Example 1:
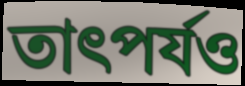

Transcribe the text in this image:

তাৎপর্যও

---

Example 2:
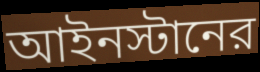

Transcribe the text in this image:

আইনস্টানের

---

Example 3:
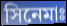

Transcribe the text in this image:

সিনেমাঃ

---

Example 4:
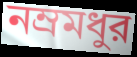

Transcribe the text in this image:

নম্রমধুর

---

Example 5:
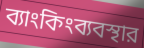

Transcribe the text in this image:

ব্যাংকিংব্যবস্থার